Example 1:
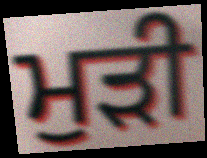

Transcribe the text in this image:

ਮੁੜੀ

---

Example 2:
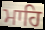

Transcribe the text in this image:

ਮਾਹਿ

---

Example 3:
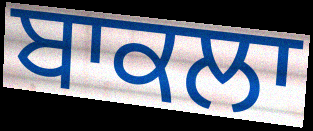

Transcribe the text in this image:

ਬਾਕਲਾ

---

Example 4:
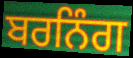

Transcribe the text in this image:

ਬਰਨਿੰਗ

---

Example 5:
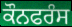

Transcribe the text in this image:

ਕੌਨਫਰੰਸ